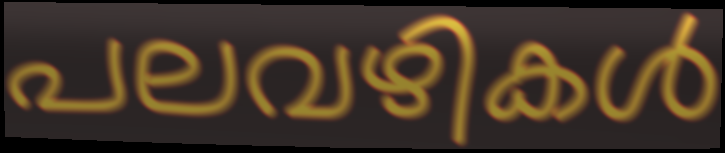
പലവഴികൾ